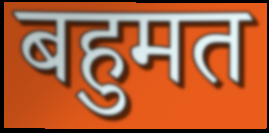
बहुमत